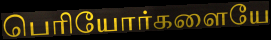
பெரியோர்களையே